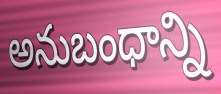
అనుబంధాన్ని